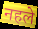
नहले